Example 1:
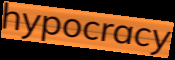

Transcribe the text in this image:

hypocracy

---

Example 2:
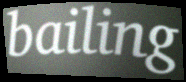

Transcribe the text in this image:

bailing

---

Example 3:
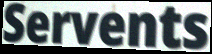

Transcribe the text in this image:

Servents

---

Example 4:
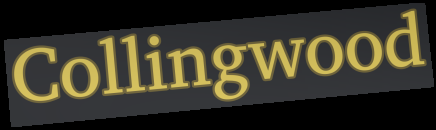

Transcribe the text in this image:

Collingwood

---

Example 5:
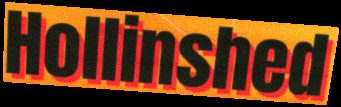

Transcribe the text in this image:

Hollinshed